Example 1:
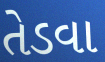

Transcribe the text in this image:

તેડવા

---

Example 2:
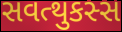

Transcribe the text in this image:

સવત્થુકસ્સ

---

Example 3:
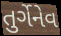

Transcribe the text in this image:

તુર્ગેનેવ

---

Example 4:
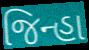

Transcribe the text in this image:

જિન્હા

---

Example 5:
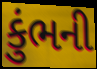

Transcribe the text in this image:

કુંભની